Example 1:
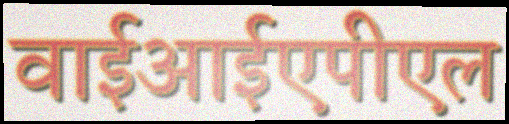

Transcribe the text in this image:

वाईआईएपीएल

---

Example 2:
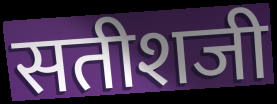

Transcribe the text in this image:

सतीशजी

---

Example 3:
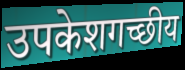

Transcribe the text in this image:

उपकेशगच्छीय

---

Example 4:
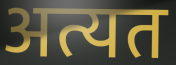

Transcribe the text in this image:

अत्यत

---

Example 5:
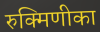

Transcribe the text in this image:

रुक्मिणीका